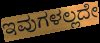
ಇವುಗಳಲ್ಲದೇ